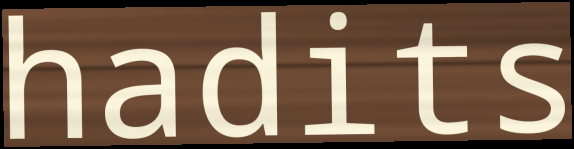
hadits